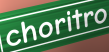
choritro